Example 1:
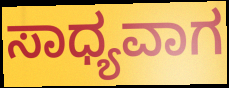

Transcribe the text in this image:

ಸಾಧ್ಯವಾಗ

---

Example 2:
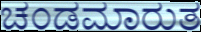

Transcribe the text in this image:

ಚಂಡಮಾರುತ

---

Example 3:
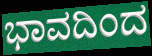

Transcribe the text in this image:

ಭಾವದಿಂದ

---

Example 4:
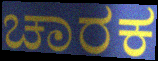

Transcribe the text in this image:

ಚಾರಕ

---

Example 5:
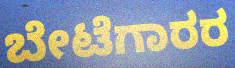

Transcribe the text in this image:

ಬೇಟೆಗಾರರ